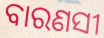
ବାରଣସୀ